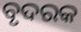
ବୃଦରକ